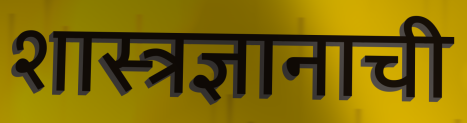
शास्त्रज्ञानाची